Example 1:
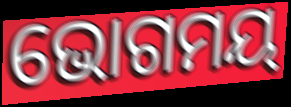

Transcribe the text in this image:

ଭୋଗମୟ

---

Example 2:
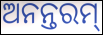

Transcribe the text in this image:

ଅନନ୍ତରମ୍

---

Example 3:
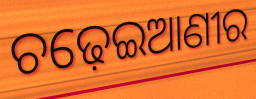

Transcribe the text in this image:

ଚଢ଼େଇଆଣୀର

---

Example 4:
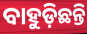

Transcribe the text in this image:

ବାହୁଡ଼ିଛନ୍ତି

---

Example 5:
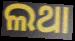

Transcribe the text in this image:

ଲଥା